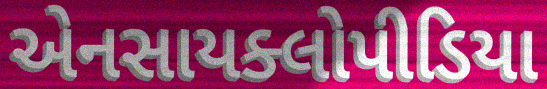
એનસાયક્લોપીડિયા